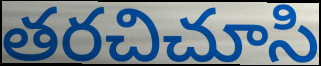
తరచిచూసి